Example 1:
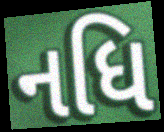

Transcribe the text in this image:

નધિ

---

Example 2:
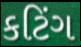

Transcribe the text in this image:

કટિંગ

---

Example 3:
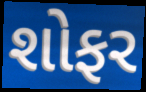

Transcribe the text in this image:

શોફર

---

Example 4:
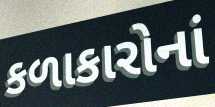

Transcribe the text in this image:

કળાકારોનાં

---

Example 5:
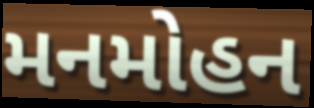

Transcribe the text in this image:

મનમોહન